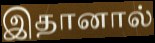
இதானால்